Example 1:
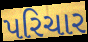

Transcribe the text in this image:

પરિચાર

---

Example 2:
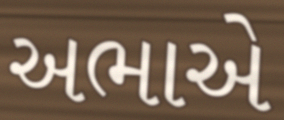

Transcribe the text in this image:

અભાએ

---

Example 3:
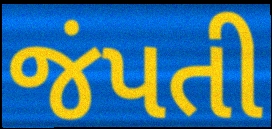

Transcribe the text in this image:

જંપતી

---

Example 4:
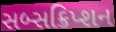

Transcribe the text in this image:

સબ્સક્રિપ્શન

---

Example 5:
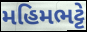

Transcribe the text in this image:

મહિમભટ્ટે